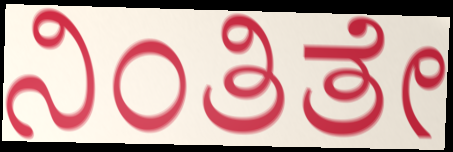
ನಿಂತಿತೇ